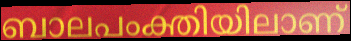
ബാലപംക്തിയിലാണ്